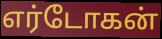
எர்டோகன்